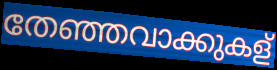
തേഞ്ഞവാക്കുകള്